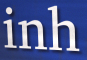
inh